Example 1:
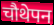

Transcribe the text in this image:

चौथेपन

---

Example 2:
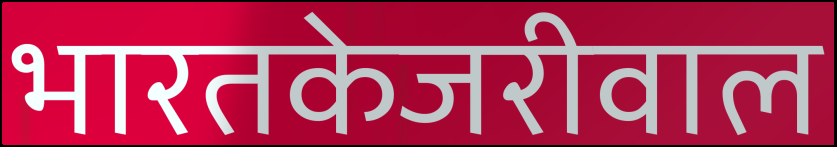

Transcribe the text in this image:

भारतकेजरीवाल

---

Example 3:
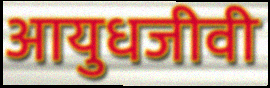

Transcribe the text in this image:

आयुधजीवी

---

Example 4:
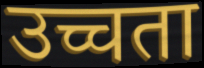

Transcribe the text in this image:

उच्चता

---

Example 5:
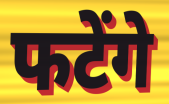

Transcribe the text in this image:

फटेंगे